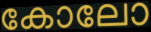
കോലോ